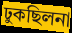
ঢুকছিলনা